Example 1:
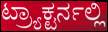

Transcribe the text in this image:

ಟ್ರ್ಯಾಕ್ಟರ್ನಲ್ಲಿ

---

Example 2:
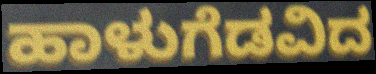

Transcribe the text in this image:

ಹಾಳುಗೆಡವಿದ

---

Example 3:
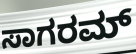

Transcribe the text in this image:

ಸಾಗರಮ್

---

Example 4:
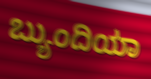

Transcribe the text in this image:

ಬ್ಯುಂದಿಯಾ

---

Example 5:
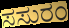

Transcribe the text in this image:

ಸಸುರಂ